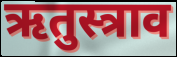
ऋतुस्त्राव